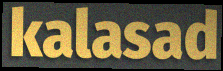
kalasad